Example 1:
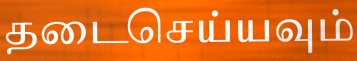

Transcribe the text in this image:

தடைசெய்யவும்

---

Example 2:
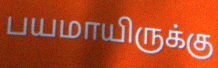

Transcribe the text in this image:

பயமாயிருக்கு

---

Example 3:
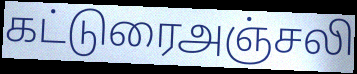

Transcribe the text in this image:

கட்டுரைஅஞ்சலி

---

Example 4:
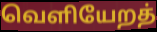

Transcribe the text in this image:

வெளியேறத்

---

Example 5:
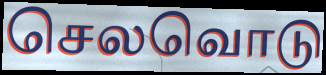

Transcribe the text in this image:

செலவொடு